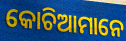
କୋଚିଆମାନେ